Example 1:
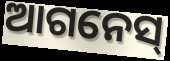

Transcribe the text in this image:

ଆଗନେସ୍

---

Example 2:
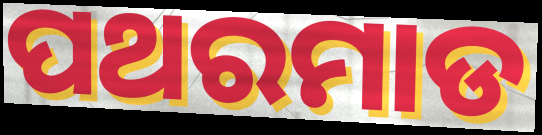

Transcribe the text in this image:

ପଥରମାଡ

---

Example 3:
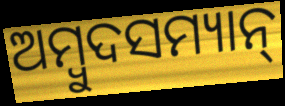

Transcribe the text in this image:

ଅମ୍ୱୁଦସମ୍ୟାନ୍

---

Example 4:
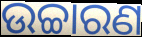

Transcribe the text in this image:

ଉଚ୍ଚାରଣ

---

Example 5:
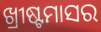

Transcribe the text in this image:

ଖ୍ରୀଷ୍ଟମାସର